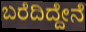
ಬರೆದಿದ್ದೇನೆ